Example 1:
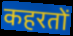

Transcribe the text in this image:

कहरतों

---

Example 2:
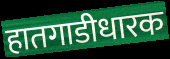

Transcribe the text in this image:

हातगाडीधारक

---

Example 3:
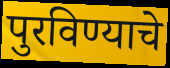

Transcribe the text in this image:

पुरविण्याचे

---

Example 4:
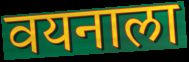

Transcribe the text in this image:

वयनाला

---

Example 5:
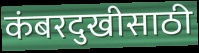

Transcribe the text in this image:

कंबरदुखीसाठी